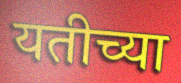
यतीच्या